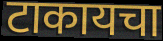
टाकायचा